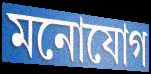
মনোযোগ